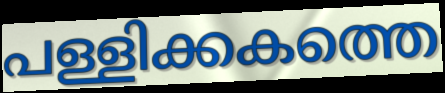
പള്ളിക്കകത്തെ